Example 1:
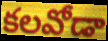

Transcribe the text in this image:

కలవోడా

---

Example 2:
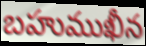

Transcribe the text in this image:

బహుముఖీన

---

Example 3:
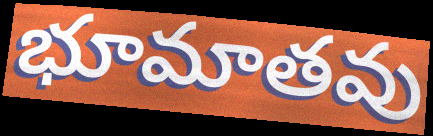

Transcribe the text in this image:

భూమాతవు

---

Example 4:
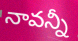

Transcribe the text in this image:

నావన్నీ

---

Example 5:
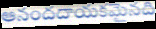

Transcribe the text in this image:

ఆనందదాయకమైనది